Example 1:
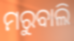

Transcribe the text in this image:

ମରୁବାଲି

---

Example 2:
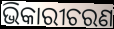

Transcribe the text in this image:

ଭିକାରୀଚରଣ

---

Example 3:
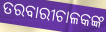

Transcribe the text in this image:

ତରବାରୀଚାଳକଙ୍କ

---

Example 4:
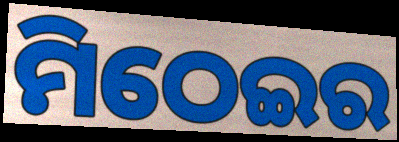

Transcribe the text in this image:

ମିଠେଇର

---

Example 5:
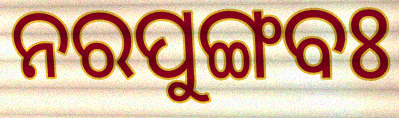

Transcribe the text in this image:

ନରପୁଙ୍ଗବଃ